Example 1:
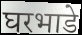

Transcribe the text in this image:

घरभाडे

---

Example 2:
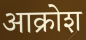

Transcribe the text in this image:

आक्रोश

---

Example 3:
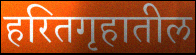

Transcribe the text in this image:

हरितगृहातील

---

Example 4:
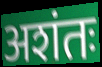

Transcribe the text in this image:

अशंतः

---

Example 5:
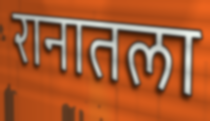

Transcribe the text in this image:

रानातला